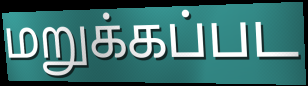
மறுக்கப்பட